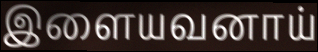
இளையவனாய்